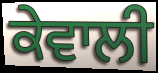
ਕੇਵਾਲੀ